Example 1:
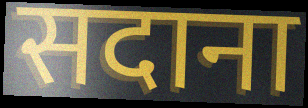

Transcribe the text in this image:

सदाना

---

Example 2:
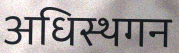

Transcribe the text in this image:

अधिस्थगन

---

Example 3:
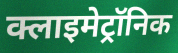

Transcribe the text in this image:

क्लाइमेट्रॉनिक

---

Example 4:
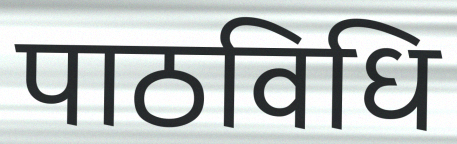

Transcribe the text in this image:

पाठविधि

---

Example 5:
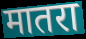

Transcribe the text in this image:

मातरा